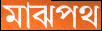
মাঝপথ